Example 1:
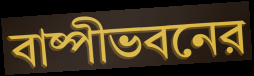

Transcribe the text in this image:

বাষ্পীভবনের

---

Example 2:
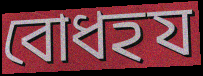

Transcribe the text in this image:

বোধহয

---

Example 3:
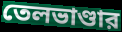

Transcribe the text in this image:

তেলভাণ্ডার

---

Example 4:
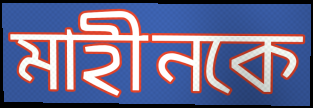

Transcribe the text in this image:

মাহীনকে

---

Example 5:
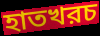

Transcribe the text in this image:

হাতখরচ